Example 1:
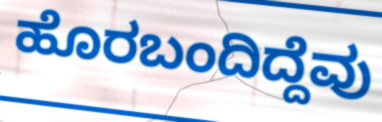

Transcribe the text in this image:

ಹೊರಬಂದಿದ್ದೆವು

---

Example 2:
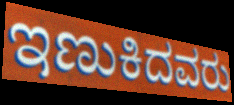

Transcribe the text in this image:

ಇಣುಕಿದವರು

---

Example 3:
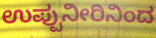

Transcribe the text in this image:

ಉಪ್ಪುನೀರಿನಿಂದ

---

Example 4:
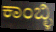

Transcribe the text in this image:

ಕಾಂಬ್ಳಿ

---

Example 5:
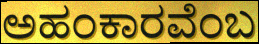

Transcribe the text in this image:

ಅಹಂಕಾರವೆಂಬ